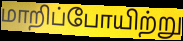
மாறிப்போயிற்று